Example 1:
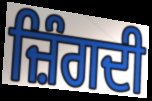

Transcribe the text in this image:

ਜ਼ਿੰਗਦੀ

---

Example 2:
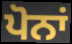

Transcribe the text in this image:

ਪੋਨਾਂ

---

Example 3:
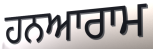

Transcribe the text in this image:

ਹਨਆਰਾਮ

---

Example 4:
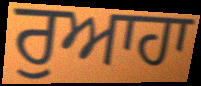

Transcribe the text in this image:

ਰੁਆਹਾ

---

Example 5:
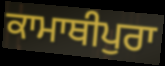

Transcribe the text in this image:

ਕਾਮਾਥੀਪੁਰਾ